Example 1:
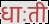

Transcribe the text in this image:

धाःती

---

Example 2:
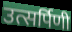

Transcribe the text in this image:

उत्सर्पिणी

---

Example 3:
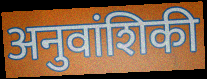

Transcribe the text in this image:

अनुवांशिकी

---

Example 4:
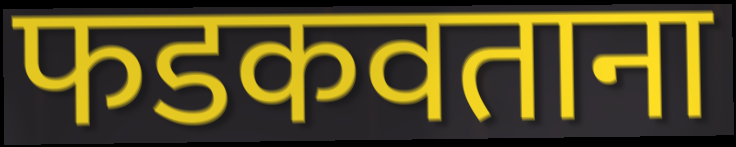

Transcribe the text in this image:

फडकवताना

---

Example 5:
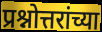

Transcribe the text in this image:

प्रश्नोत्तरांच्या